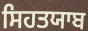
ਸਿਹਤਯਾਬ